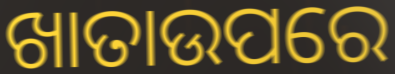
ଖାତାଉପରେ